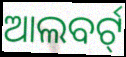
ଆଲବର୍ଟ୍